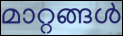
മാറ്റങ്ങൾ